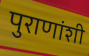
पुराणांशी